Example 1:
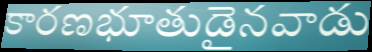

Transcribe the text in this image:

కారణభూతుడైనవాడు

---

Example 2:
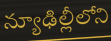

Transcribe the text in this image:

న్యూఢిల్లీలోని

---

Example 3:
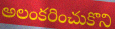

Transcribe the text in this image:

అలంకరించుకొని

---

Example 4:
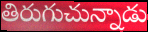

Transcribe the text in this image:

తిరుగుచున్నాడు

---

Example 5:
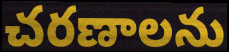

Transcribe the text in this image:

చరణాలను